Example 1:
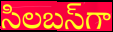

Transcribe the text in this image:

సిలబస్‌గా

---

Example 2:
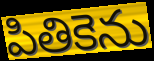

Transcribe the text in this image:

పితికెను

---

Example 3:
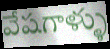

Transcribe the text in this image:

వేషగాళ్ళు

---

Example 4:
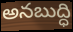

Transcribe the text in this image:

అనబుద్ధి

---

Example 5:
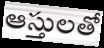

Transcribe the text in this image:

ఆస్తులతో